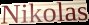
Nikolas